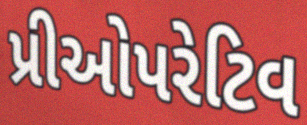
પ્રીઓપરેટિવ